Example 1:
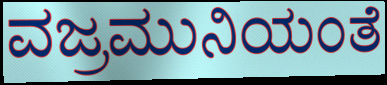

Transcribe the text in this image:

ವಜ್ರಮುನಿಯಂತೆ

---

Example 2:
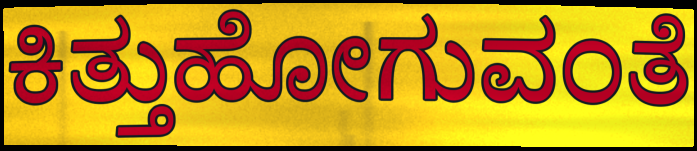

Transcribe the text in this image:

ಕಿತ್ತುಹೋಗುವಂತೆ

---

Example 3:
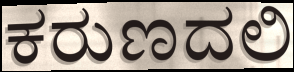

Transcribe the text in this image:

ಕರುಣದಲಿ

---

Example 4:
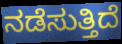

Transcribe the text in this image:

ನಡೆಸುತ್ತಿದೆ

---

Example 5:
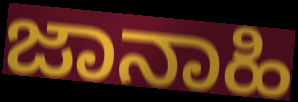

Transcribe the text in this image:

ಜಾನಾಹಿ